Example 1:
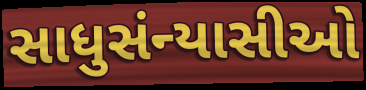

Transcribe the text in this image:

સાધુસંન્યાસીઓ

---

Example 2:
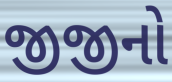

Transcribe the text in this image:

જીજીનો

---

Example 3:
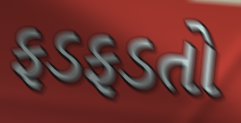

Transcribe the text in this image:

ફડફડતો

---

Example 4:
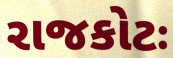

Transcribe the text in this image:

રાજકોટઃ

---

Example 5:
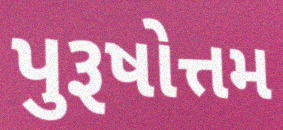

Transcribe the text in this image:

પુરૂષોત્તમ